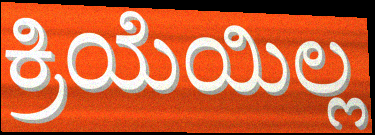
ಕ್ರಿಯೆಯಿಲ್ಲ